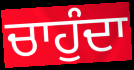
ਚਾਹੁੰਦਾ